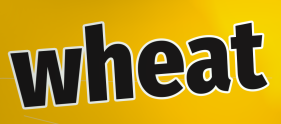
wheat